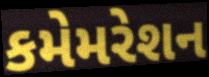
કમેમરેશન